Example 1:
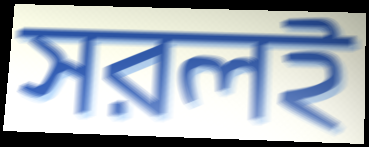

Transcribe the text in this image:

সরলই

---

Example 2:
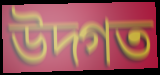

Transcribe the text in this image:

উদ্গত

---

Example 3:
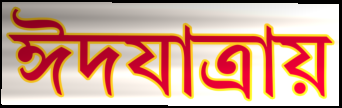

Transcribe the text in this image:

ঈদযাত্রায়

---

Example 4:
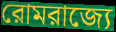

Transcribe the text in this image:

রোমরাজ্যে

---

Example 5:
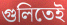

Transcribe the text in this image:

গুলিতেই